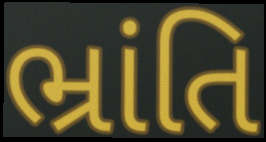
ભ્રાંતિ